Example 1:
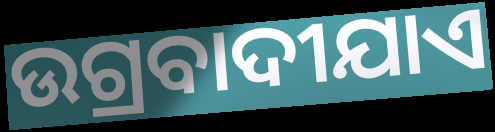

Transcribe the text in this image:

ଉଗ୍ରବାଦୀଯାଏ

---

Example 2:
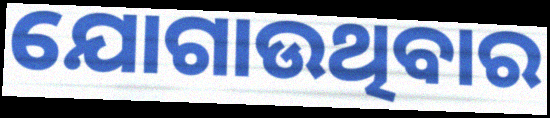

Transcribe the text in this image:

ଯୋଗାଉଥିବାର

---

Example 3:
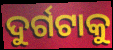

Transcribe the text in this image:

ଦୁର୍ଗଟାକୁ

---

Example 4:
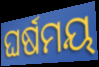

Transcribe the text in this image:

ଘର୍ଷମୟ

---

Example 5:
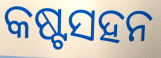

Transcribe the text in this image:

କଷ୍ଟସହନ